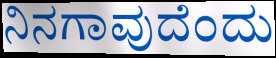
ನಿನಗಾವುದೆಂದು